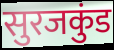
सुरजकुंड